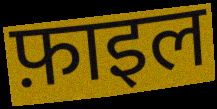
फ़ाइल